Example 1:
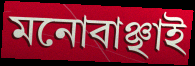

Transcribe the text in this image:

মনোবাঞ্ছাই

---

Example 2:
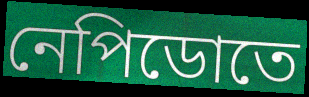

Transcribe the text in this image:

নেপিডোতে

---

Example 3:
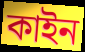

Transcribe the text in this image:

কাইন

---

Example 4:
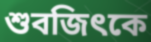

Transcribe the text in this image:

শুবজিৎকে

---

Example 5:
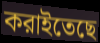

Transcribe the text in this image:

করাইতেছে